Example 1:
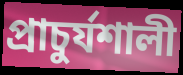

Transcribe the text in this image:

প্রাচুর্যশালী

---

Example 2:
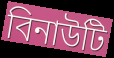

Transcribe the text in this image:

বিনাউটি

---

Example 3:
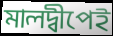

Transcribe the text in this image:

মালদ্বীপেই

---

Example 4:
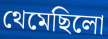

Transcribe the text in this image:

থেমেছিলো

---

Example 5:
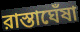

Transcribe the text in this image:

রাস্তাঘেঁষা